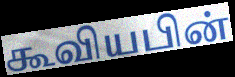
கூவியபின்